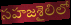
సహజశైలిలో